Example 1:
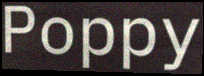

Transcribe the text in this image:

Poppy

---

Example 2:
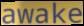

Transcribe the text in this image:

awake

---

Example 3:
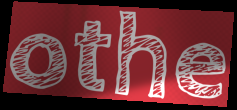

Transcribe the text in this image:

othe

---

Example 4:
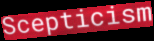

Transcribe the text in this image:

Scepticism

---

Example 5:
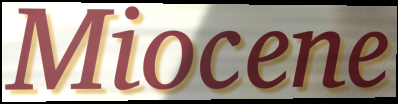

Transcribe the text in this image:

Miocene